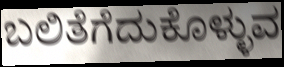
ಬಲಿತೆಗೆದುಕೊಳ್ಳುವ